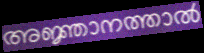
അജ്ഞാനത്താൽ